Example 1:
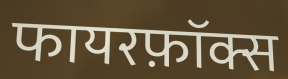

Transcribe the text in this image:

फायरफ़ॉक्स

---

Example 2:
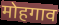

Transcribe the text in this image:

मोहगाव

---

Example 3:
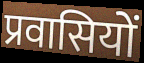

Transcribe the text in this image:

प्रवासियों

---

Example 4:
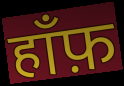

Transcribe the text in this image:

हाँफ़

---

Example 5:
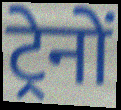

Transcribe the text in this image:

ट्रेनों